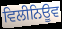
ਵਿਲੀਨਿਊਵ